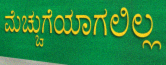
ಮೆಚ್ಚುಗೆಯಾಗಲಿಲ್ಲ